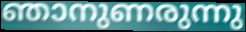
ഞാനുണരുന്നു